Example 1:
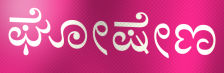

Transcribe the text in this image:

ಘೋಷೇಣ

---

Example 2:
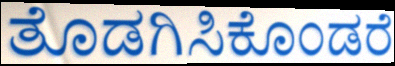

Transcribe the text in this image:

ತೊಡಗಿಸಿಕೊಂಡರೆ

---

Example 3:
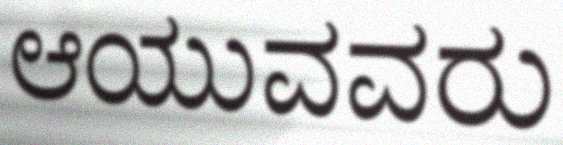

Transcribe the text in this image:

ಆಯುವವರು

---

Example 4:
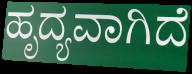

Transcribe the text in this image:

ಹೃದ್ಯವಾಗಿದೆ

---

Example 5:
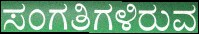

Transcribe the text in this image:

ಸಂಗತಿಗಳಿರುವ